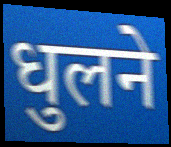
धुलने